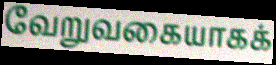
வேறுவகையாகக்